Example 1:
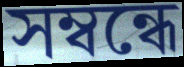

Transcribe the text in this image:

সম্বন্ধে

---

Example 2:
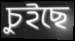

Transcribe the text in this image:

চুইছে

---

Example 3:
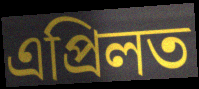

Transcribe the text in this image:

এপ্ৰিলত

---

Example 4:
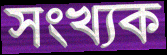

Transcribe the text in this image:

সংখ্যক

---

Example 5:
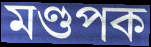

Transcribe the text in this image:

মণ্ডপক